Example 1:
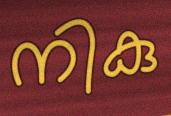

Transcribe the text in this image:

നികു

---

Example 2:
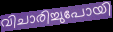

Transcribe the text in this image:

വിചാരിച്ചുപോയി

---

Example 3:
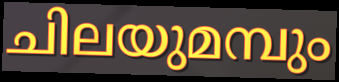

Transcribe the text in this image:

ചിലയുമമ്പും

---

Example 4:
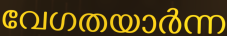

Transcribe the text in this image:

വേഗതയാർന്ന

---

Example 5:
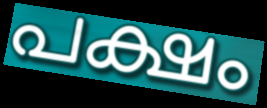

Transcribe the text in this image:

പക്ഷം